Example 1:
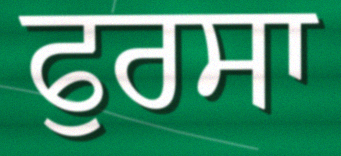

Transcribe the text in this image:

ਫੁਰਸਾ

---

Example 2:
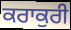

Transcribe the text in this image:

ਕਰਾਕੁਰੀ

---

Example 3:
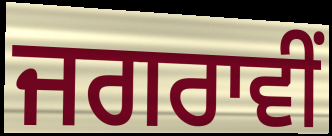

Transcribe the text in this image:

ਜਗਰਾਵੀਂ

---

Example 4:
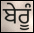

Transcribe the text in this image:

ਬੇਰੂੰ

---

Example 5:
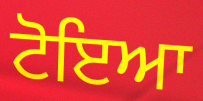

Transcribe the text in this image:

ਟੋਇਆ